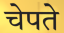
चेपते